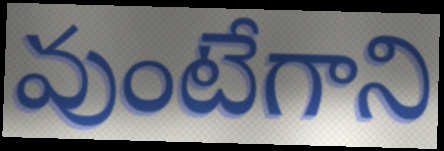
వుంటేగాని